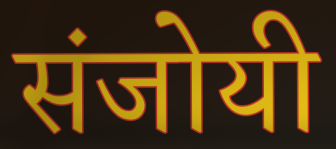
संजोयी